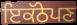
ਇਕੱਠੇਪਣ